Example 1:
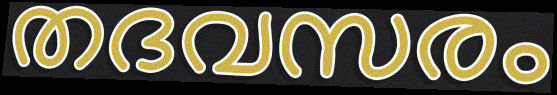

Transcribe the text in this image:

തദവസരം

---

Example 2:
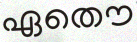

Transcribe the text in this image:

ഏതൌ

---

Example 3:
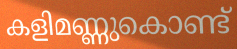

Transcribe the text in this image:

കളിമണ്ണുകൊണ്ട്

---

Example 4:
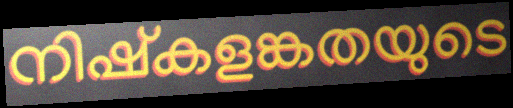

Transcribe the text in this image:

നിഷ്കളങ്കതയുടെ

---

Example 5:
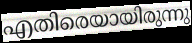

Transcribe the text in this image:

എതിരെയായിരുന്നു